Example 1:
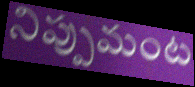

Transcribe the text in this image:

నిప్పుమంట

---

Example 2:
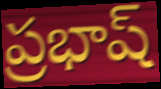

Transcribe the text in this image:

ప్రభాష్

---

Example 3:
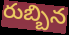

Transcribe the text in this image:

రుబ్బిన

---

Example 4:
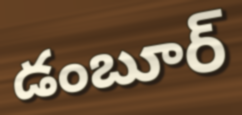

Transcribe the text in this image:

డంబూర్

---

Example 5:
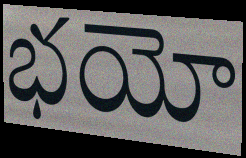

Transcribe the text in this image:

భయో